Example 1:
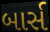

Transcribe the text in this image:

બાર્સ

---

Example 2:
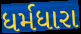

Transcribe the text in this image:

ધર્મધારા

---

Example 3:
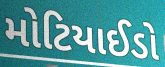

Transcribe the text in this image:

મોટિયાઈડો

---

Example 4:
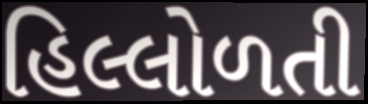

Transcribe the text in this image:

હિલ્લોળતી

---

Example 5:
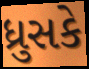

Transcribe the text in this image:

ધ્રુસકે